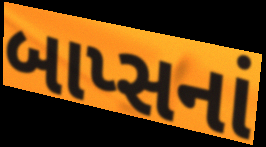
બાપ્સનાં